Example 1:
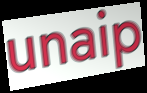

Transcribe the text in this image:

unaip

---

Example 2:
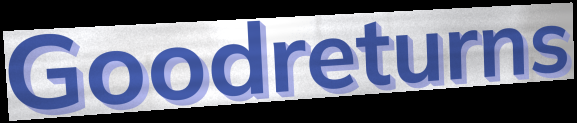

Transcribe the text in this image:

Goodreturns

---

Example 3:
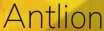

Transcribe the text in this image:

Antlion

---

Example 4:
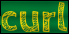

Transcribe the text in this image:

curl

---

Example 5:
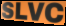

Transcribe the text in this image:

SLVC